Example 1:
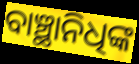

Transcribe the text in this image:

ବାଞ୍ଛାନିଧିଙ୍କ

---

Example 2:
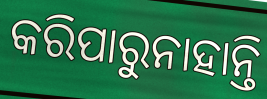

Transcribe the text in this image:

କରିପାରୁନାହାନ୍ତି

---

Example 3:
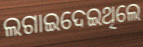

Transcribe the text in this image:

ଲଗାଇଦେଇଥିଲେ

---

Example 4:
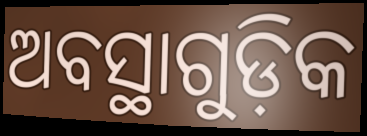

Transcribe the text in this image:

ଅବସ୍ଥାଗୁଡ଼ିକ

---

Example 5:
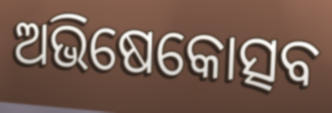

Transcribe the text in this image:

ଅଭିଷେକୋତ୍ସବ